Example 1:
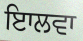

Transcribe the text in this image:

ਇਾਲਵਾ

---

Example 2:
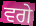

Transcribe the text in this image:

ਵਗੇ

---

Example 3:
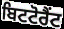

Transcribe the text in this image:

ਬਿਟਟੋਰੈਂਟ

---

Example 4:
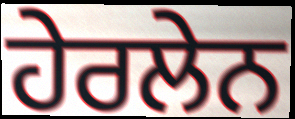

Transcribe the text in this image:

ਹੇਰਲੇਨ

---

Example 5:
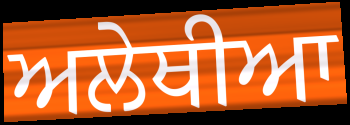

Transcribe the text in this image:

ਅਲੇਥੀਆ